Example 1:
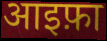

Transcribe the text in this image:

आइफ़ा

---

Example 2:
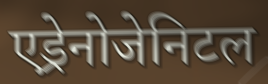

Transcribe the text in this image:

एड्रेनोजेनिटल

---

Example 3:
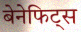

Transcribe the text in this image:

बेनेफिट्स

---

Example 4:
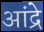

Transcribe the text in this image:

आंद्रे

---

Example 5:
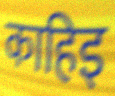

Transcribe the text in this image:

काहिइ